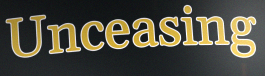
Unceasing